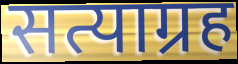
सत्याग्रह